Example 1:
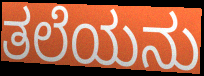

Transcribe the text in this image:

ತಲೆಯನು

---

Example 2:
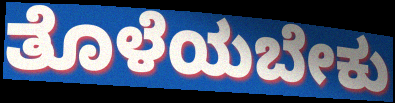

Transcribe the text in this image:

ತೊಳೆಯಬೇಕು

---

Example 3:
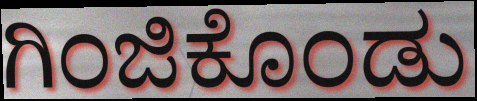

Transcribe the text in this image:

ಗಿಂಜಿಕೊಂಡು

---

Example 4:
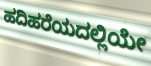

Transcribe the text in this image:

ಹದಿಹರೆಯದಲ್ಲಿಯೇ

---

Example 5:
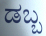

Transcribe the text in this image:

ಡಬ್ಬ